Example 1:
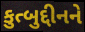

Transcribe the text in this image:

કુત્બુદ્દીનને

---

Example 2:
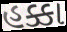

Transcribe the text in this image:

હક્કા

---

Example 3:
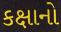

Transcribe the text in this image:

કક્ષાનો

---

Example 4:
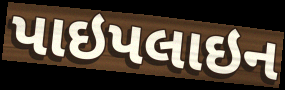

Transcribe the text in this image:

પાઇપલાઇન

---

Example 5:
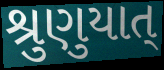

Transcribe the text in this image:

શ્રુણુયાત્